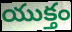
యుక్తం